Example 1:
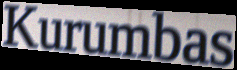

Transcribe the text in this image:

Kurumbas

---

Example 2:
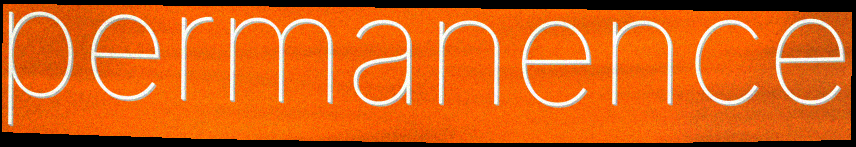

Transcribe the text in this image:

permanence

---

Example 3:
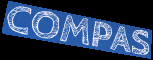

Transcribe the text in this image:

COMPAS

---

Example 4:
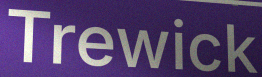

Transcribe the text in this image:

Trewick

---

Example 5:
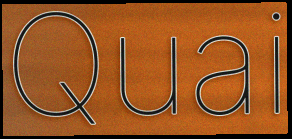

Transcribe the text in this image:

Quai